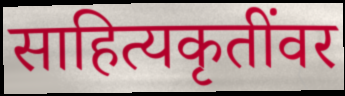
साहित्यकृतींवर